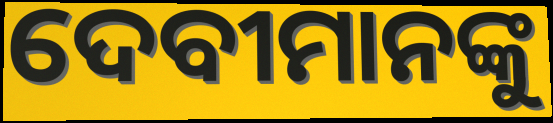
ଦେବୀମାନଙ୍କୁ